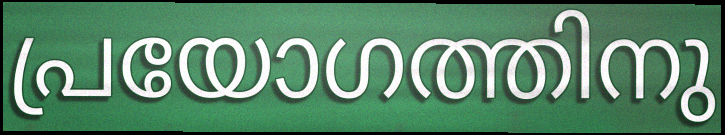
പ്രയോഗത്തിനു